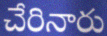
చేరినారు